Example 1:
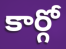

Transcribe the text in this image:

కార్గో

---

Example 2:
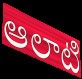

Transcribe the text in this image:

ఆలాటి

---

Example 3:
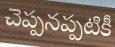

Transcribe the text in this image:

చెప్పనప్పటికీ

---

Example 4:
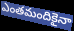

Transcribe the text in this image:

ఎంతమందికైనా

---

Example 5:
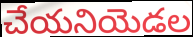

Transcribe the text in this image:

చేయనియెడల